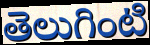
తెలుగింటి